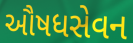
ઔષધસેવન